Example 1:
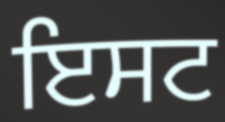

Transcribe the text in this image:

ਇਸਟ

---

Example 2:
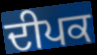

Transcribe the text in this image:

ਦੀਪਕ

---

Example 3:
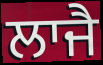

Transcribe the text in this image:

ਲਾਜੈ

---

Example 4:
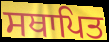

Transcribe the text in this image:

ਸਥਾਪਿਤ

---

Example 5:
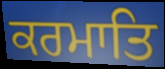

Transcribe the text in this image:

ਕਰਮਾਤਿ